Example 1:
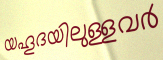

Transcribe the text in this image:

യഹൂദയിലുള്ളവർ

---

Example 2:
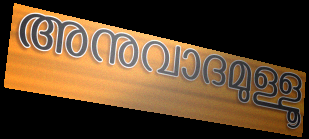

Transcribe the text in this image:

അനുവാദമുള്ളൂ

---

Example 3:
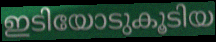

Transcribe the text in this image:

ഇടിയോടുകൂടിയ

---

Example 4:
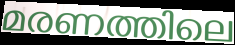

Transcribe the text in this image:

മരണത്തിലെ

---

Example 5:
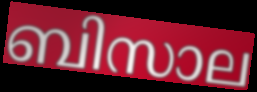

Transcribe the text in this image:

ബിസാല